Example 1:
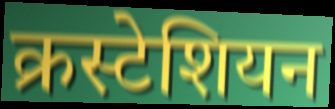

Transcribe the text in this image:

क्रस्टेशियन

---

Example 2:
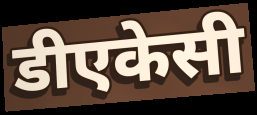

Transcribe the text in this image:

डीएकेसी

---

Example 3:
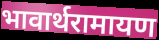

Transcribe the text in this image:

भावार्थरामायण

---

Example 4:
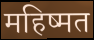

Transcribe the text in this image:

महिष्मत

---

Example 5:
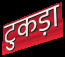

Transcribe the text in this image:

टुकड़ा